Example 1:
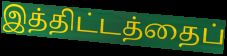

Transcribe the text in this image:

இத்திட்டத்தைப்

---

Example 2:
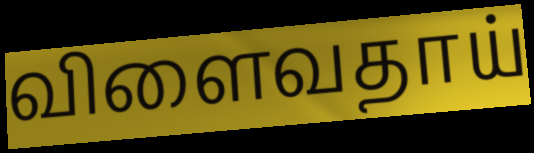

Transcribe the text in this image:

விளைவதாய்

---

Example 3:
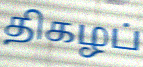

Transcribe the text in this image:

திகழப்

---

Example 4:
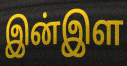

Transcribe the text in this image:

இன்இள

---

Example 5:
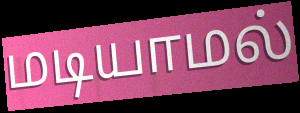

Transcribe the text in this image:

மடியாமல்